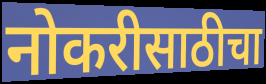
नोकरीसाठीचा